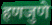
हणजुणे